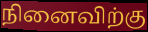
நினைவிற்கு